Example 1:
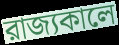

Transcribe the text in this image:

রাজ্যকালে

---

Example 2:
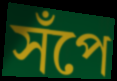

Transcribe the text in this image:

সঁপে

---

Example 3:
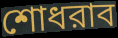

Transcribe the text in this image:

শোধরাব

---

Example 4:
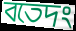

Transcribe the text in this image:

বতেদং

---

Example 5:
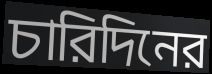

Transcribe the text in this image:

চারিদিনের